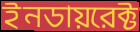
ইনডায়রেক্ট